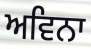
ਅਵਿਨਾ